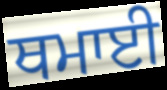
ਥਮਾਈ